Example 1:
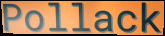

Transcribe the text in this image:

Pollack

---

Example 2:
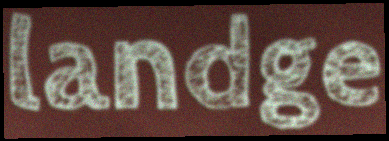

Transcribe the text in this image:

landge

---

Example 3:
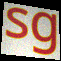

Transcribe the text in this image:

sg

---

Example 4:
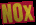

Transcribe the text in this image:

NOx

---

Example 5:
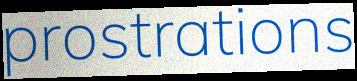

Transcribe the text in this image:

prostrations